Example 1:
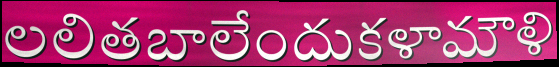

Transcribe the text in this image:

లలితబాలేందుకళామౌళి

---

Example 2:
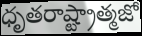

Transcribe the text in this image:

ధృతరాష్ట్రాత్మజో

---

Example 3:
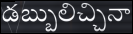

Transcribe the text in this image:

డబ్బులిచ్చినా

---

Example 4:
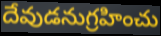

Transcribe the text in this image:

దేవుడనుగ్రహించు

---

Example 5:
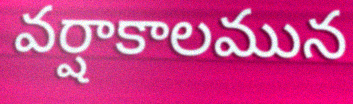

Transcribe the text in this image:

వర్షాకాలమున